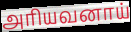
அரியவனாய்